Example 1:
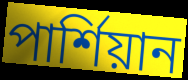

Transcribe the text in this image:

পার্শিয়ান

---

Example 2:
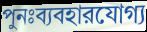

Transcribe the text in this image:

পুনঃব্যবহারযোগ্য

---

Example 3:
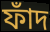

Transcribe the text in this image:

ফাঁদ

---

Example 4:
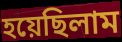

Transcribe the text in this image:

হয়েছিলাম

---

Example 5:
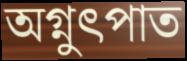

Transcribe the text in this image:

অগ্নুৎপাত